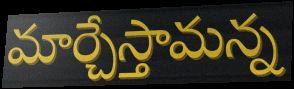
మార్చేస్తామన్న